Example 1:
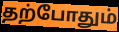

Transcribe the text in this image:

தற்போதும்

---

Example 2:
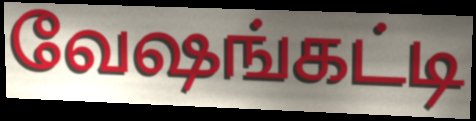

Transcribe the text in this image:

வேஷங்கட்டி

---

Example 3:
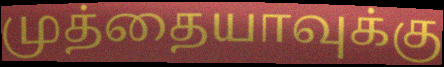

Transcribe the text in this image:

முத்தையாவுக்கு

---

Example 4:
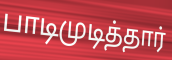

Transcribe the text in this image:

பாடிமுடித்தார்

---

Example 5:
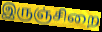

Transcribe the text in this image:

இருஞ்சிறை